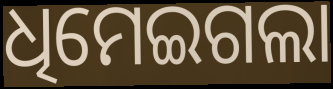
ଧିମେଇଗଲା